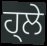
ਹ੍ਲੇ